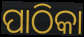
ପାଠିକା